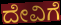
ದೇವಿಗೆ